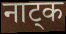
नाट्क